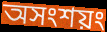
অসংশয়ং